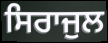
ਸਿਰਾਜੁਲ